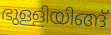
ഭുള്ളിയിങ്ങ്